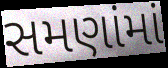
સમણાંમાં